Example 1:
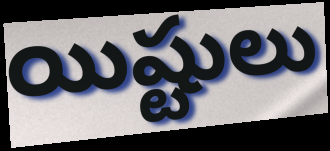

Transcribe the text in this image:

యిష్టులు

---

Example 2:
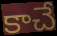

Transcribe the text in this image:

కాచే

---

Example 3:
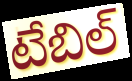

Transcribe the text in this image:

టేబిల్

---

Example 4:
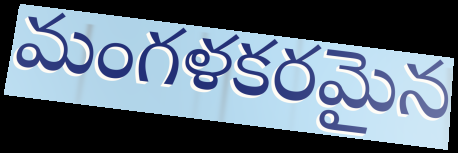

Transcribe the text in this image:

మంగళకరమైన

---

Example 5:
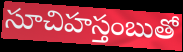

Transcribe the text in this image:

సూచిహస్తంబుతో